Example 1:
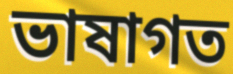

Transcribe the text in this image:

ভাষাগত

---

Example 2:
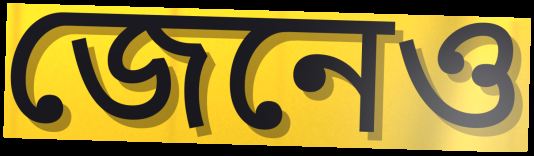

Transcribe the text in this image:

জেনেও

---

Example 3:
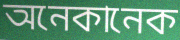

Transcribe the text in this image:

অনেকানেক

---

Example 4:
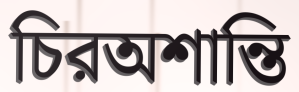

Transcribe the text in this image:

চিরঅশান্তি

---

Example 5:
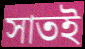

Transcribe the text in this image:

সাতই